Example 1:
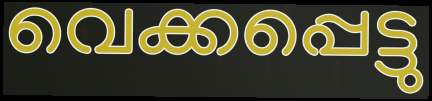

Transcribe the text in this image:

വെക്കപ്പെട്ടു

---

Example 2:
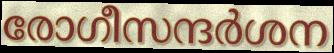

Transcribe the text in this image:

രോഗീസന്ദർശന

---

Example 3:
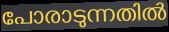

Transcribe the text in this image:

പോരാടുന്നതിൽ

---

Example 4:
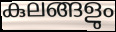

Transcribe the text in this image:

കുലങ്ങളും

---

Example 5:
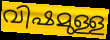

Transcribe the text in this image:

വിഷമുള്ള